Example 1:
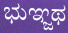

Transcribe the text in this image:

ಭುಞ್ಜಥ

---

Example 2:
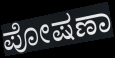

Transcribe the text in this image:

ಪೋಷಣಾ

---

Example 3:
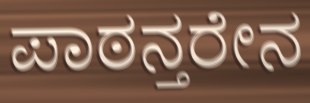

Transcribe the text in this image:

ಪಾಠನ್ತರೇನ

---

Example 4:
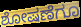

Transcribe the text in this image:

ಶೋಷಣೆಗೂ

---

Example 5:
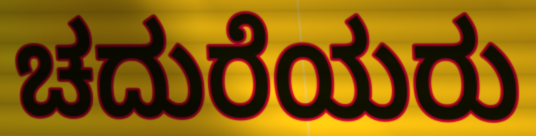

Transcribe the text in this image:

ಚದುರೆಯರು